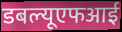
डबल्यूएफआई